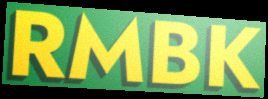
RMBK